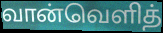
வான்வெளித்